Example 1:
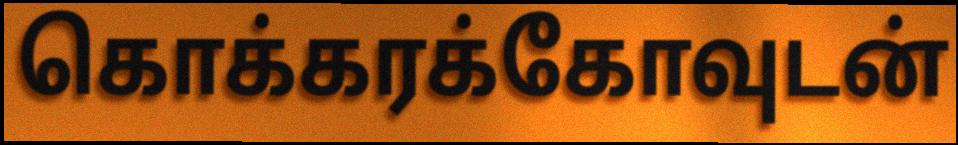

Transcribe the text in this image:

கொக்கரக்கோவுடன்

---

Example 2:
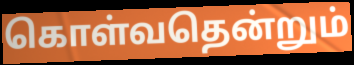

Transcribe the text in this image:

கொள்வதென்றும்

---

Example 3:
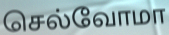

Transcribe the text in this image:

செல்வோமா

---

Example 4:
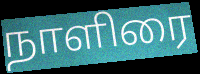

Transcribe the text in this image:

நாளிரை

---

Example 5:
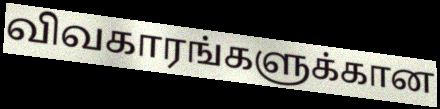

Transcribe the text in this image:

விவகாரங்களுக்கான